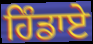
ਹਿੰਡਾਏ